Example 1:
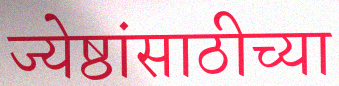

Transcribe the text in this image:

ज्येष्ठांसाठीच्या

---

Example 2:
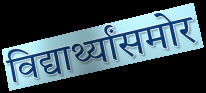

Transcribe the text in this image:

विद्यार्थ्यांसमोर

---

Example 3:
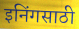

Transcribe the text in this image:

इनिंगसाठी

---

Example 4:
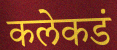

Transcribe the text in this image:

कलेकडं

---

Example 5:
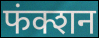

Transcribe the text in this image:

फंक्शन